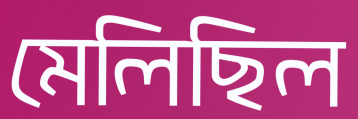
মেলিছিল